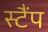
स्टैंप